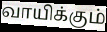
வாயிக்கும்